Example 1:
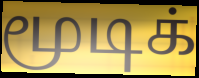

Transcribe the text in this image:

மூடிக்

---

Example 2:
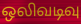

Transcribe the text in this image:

ஒலிவடிவு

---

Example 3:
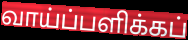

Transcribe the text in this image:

வாய்ப்பளிக்கப்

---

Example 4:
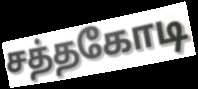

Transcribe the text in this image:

சத்தகோடி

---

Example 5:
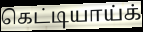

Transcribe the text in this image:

கெட்டியாய்க்